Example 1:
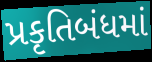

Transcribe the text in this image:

પ્રકૃતિબંધમાં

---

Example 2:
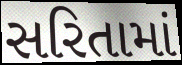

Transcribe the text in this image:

સરિતામાં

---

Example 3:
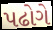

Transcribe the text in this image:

પઢોગે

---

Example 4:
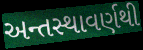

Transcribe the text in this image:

અન્તસ્થાવર્ણથી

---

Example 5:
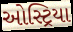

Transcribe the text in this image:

ઓસ્ટ્રિયા